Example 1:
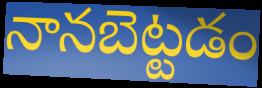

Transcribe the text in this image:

నానబెట్టడం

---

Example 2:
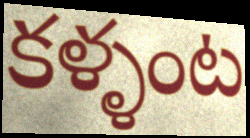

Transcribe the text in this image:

కళ్ళంట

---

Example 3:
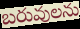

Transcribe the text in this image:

బరువులను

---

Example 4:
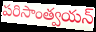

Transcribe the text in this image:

పరిసాంత్వయన్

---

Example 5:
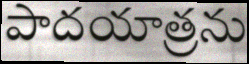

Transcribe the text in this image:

పాదయాత్రను